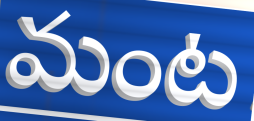
మంట